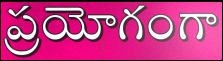
ప్రయోగంగా